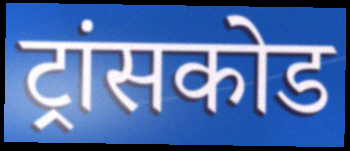
ट्रांसकोड